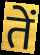
तें